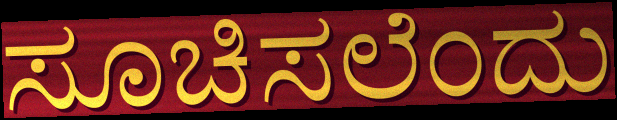
ಸೂಚಿಸಲೆಂದು